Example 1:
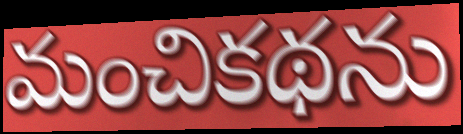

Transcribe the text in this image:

మంచికథను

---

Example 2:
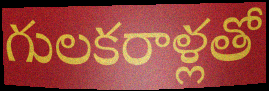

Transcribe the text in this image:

గులకరాళ్లతో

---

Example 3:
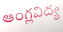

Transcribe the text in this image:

ఆంగ్లవిద్య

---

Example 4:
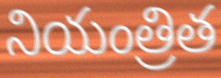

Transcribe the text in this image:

నియంత్రిత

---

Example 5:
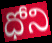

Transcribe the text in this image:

ధోని